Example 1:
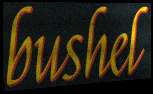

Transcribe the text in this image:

bushel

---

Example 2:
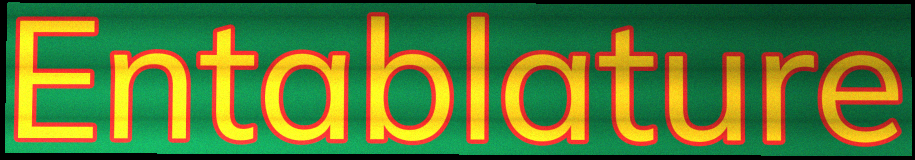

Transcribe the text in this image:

Entablature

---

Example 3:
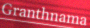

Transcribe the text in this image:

Granthnama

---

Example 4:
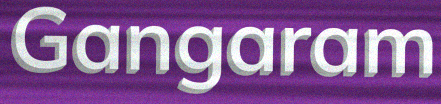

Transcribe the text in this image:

Gangaram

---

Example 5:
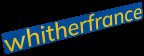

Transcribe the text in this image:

whitherfrance